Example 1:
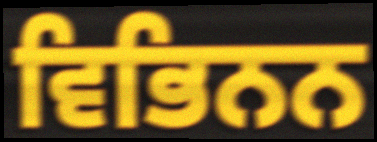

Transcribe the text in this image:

ਵਿਭਿਨਨ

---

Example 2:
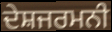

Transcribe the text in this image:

ਦੇਸ਼ਜਰਮਨੀ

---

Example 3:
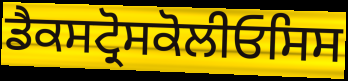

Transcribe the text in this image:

ਡੈਕਸਟ੍ਰੋਸਕੋਲੀਓਸਿਸ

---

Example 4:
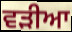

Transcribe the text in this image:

ਵੜੀਆ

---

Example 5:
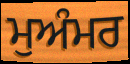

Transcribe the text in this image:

ਮੁਅੰਮਰ